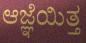
ಆಜ್ಞೆಯಿತ್ತ